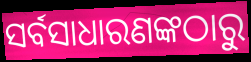
ସର୍ବସାଧାରଣଙ୍କଠାରୁ